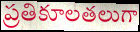
ప్రతికూలతలుగా